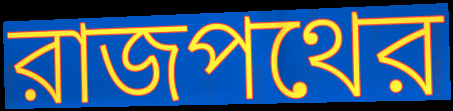
রাজপথের